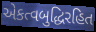
એકત્વબુદ્ધિરહિત